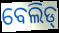
ବେଲିଡ୍